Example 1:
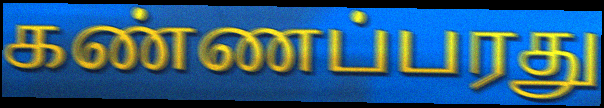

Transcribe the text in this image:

கண்ணப்பரது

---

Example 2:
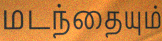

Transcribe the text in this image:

மடந்தையும்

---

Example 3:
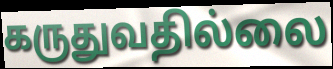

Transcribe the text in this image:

கருதுவதில்லை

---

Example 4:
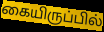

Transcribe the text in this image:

கையிருப்பில்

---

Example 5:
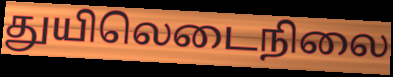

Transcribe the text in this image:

துயிலெடைநிலை